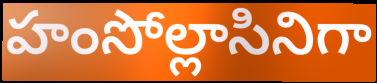
హంసోల్లాసినిగా